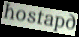
hostapd